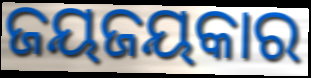
ଜୟଜୟକାର